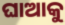
ଘାଆକୁ